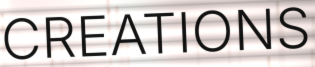
CREATIONS